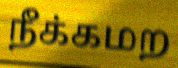
நீக்கமற